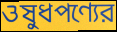
ওষুধপণ্যের